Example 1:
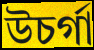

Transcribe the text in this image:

উচৰ্গা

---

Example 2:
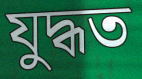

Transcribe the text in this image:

যুদ্ধত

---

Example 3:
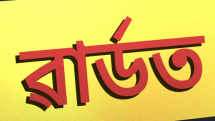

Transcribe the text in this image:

ৱাৰ্ডত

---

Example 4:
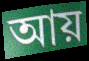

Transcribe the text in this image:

আয়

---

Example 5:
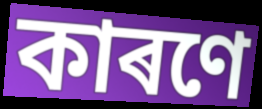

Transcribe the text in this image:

কাৰণে